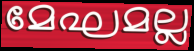
മേഘമല്ല